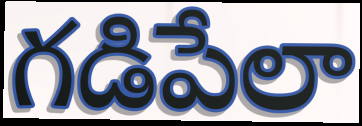
గడిపేలా